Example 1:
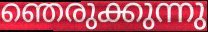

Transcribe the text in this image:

ഞെരുക്കുന്നു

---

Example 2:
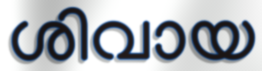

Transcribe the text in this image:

ശിവായ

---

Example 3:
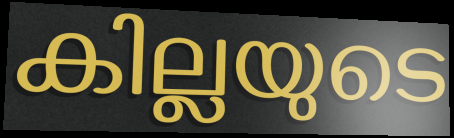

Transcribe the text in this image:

കില്ലയുടെ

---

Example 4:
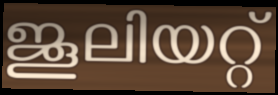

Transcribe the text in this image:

ജൂലിയറ്റ്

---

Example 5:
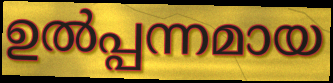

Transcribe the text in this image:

ഉൽപ്പന്നമായ